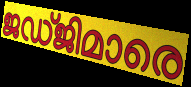
ജഡ്ജിമാരെ